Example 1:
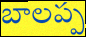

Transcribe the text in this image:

బాలప్ప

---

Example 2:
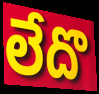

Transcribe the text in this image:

లేదొ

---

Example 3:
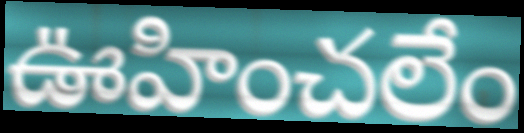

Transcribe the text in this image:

ఊహించలేం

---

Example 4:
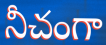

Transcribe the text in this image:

నీచంగా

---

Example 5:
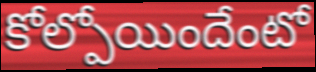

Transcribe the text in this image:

కోల్పోయిందేంటో